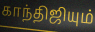
காந்திஜியும்